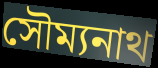
সৌম্যনাথ